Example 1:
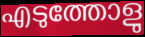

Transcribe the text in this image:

എടുത്തോളു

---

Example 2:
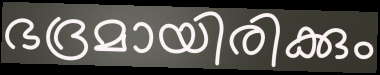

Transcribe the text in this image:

ഭദ്രമായിരിക്കും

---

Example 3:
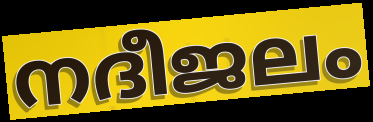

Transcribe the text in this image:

നദീജലം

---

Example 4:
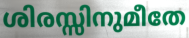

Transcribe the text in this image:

ശിരസ്സിനുമീതേ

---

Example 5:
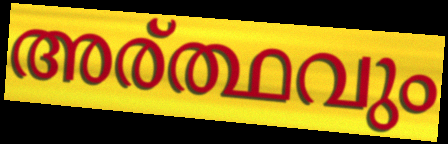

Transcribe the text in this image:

അര്ത്ഥവും